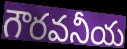
గౌరవనీయ